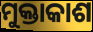
ମୁକ୍ତାକାଶ